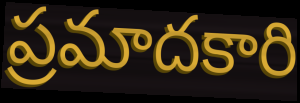
ప్రమాదకారి